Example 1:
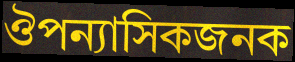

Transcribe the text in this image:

ঔপন্যাসিকজনক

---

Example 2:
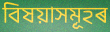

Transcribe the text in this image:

বিষয়াসমূহৰ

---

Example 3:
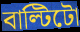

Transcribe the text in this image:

বাল্টিটো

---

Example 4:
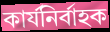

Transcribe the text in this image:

কাৰ্যনিৰ্বাহক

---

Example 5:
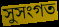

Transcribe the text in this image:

সুসংগত